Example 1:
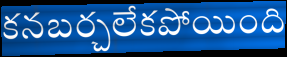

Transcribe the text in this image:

కనబర్చలేకపోయింది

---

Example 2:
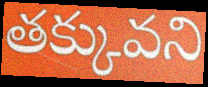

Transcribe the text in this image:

తక్కువని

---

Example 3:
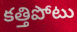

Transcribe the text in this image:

కత్తిపోటు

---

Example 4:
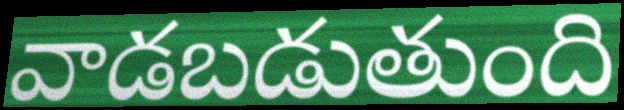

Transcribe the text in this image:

వాడబడుతుంది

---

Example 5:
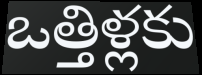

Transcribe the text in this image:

ఒత్తిళ్లకు